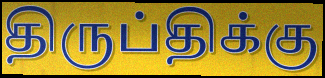
திருப்திக்கு